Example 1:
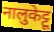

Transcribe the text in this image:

नालुकेट्टू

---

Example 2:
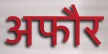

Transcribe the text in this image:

अफौर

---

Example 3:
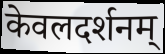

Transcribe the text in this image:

केवलदर्शनम्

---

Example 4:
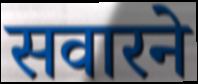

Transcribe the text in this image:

सवारने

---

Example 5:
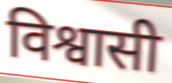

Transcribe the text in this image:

विश्वासी